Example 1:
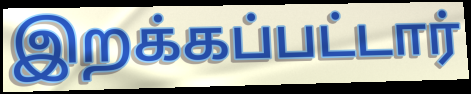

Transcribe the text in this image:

இறக்கப்பட்டார்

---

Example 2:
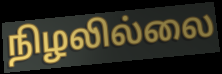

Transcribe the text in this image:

நிழலில்லை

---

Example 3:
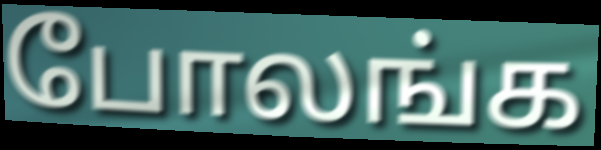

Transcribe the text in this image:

போலங்க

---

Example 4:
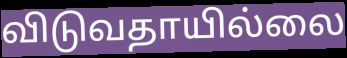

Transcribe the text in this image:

விடுவதாயில்லை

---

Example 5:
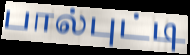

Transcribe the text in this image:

பால்புட்டி